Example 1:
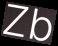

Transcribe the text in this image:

Zb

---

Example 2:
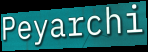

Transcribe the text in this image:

Peyarchi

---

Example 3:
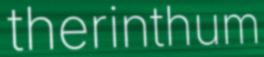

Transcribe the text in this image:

therinthum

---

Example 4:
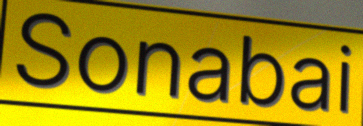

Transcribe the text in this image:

Sonabai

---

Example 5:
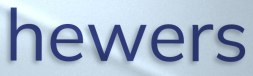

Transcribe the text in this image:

hewers